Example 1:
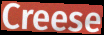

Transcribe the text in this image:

Creese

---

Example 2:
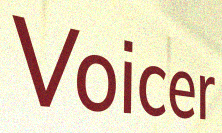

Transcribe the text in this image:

Voicer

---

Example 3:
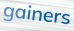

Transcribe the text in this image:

gainers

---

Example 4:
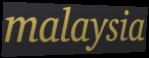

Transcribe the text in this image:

malaysia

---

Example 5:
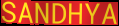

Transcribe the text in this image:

SANDHYA